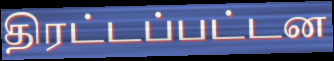
திரட்டப்பட்டன